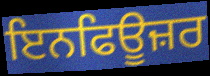
ਇਨਫਿਊਜ਼ਰ